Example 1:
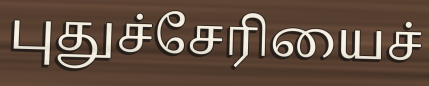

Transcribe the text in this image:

புதுச்சேரியைச்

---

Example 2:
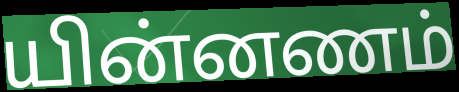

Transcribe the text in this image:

யின்னணம்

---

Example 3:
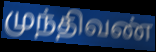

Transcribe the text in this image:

முந்திவண்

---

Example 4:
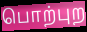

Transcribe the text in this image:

பொற்புற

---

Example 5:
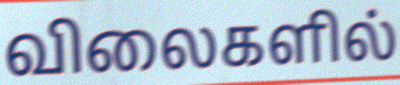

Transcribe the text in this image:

விலைகளில்